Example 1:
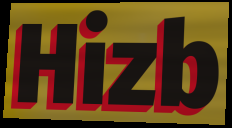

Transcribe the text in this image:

Hizb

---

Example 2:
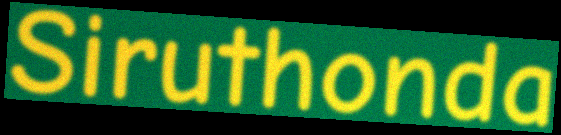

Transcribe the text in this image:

Siruthonda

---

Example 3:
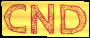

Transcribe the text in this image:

CND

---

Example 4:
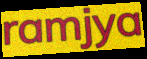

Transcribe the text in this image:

ramjya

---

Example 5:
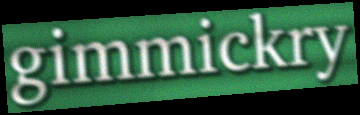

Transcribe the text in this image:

gimmickry